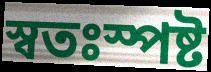
স্বতঃস্পষ্ট